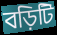
বড়িটি